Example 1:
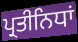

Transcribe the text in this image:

ਪ੍ਰਤੀਨਿਧਾਂ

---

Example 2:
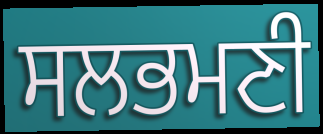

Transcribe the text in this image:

ਸਲਭਮਣੀ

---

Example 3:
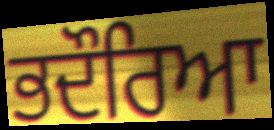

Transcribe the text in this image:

ਭਦੌਰਿਆ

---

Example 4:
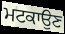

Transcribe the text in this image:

ਮਟਕਾਉਣ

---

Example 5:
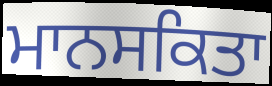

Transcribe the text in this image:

ਮਾਨਸਕਿਤਾ